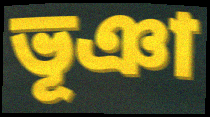
ভূঞা